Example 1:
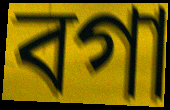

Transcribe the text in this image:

বগা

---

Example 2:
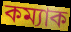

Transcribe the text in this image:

কম্যাক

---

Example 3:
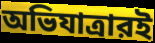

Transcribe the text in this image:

অভিযাত্রারই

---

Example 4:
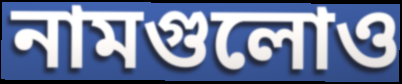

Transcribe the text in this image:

নামগুলোও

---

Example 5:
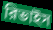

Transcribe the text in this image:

রিভাইস